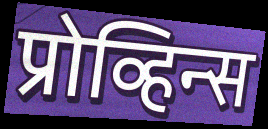
प्रोव्हिन्स